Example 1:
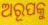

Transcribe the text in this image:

ଅରୂପକୁ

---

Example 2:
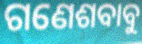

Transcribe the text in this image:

ଗଣେଶବାବୁ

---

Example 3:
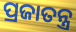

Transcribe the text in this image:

ପ୍ରଜାତନ୍ତ୍ର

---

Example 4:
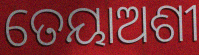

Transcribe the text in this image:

ତେୟାଅଶୀ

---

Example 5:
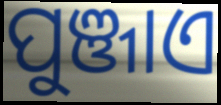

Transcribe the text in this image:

ପୁଞ୍ଜାଏ